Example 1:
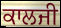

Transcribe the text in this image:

ਕਾਲਜੀ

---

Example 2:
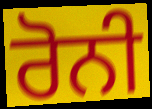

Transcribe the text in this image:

ਰੋਨੀ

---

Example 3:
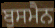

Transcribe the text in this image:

ਬੁਸਮੈਨ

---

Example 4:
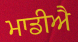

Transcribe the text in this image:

ਮਾਡੀਐ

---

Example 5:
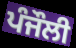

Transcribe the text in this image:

ਪੰਜੌਲੀ